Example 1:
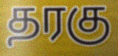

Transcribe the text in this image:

தரகு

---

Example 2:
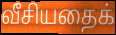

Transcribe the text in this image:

வீசியதைக்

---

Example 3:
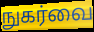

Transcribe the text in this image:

நுகர்வை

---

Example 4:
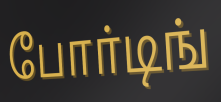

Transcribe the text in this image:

போர்டிங்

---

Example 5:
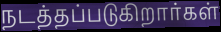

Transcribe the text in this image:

நடத்தப்படுகிறார்கள்